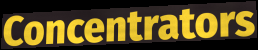
Concentrators